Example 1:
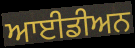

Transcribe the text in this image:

ਆਈਡੀਅਨ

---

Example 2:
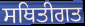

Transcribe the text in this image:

ਸਥਿਤੀਗਤ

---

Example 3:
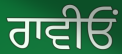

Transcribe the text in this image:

ਰਾਵੀਓਂ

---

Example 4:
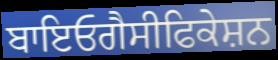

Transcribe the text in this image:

ਬਾਇਓਗੈਸੀਫਿਕੇਸ਼ਨ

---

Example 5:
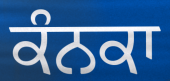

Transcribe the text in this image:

ਕੰਨਕਾ